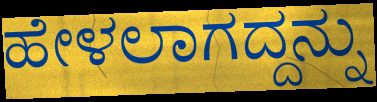
ಹೇಳಲಾಗದ್ದನ್ನು